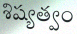
శిష్యత్వం